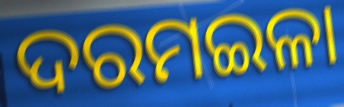
ଦରମଇଳା